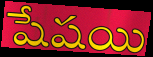
షేషయి